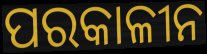
ପରକାଳୀନ